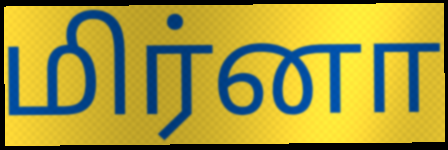
மிர்னா